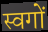
स्वगों